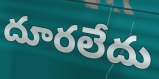
దూరలేదు